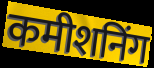
कमीशनिंग